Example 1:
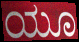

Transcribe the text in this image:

ಯೂ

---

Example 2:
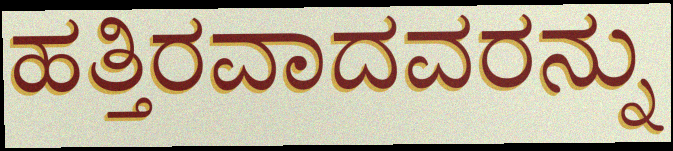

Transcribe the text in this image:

ಹತ್ತಿರವಾದವರನ್ನು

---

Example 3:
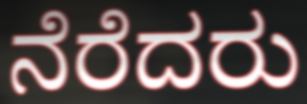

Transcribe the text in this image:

ನೆರೆದರು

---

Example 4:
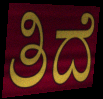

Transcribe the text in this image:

ತಿದೆ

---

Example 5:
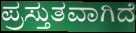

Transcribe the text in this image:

ಪ್ರಸ್ತುತವಾಗಿದೆ